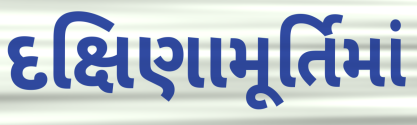
દક્ષિણામૂર્તિમાં